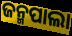
ଜନ୍ମପାଲା